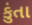
કુંતા